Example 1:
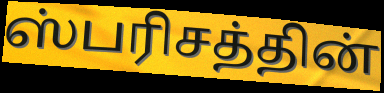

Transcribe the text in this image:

ஸ்பரிசத்தின்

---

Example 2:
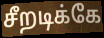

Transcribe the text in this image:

சீறடிக்கே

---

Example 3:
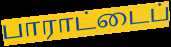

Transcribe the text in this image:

பாராட்டைப்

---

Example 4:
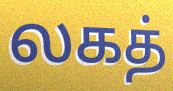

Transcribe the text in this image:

லகத்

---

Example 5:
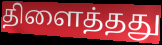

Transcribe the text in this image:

திளைத்தது